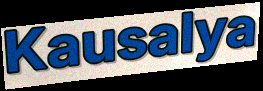
Kausalya